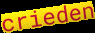
crieden